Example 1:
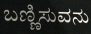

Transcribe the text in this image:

ಬಣ್ಣಿಸುವನು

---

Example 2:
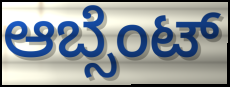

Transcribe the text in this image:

ಆಬ್ಸೆಂಟ್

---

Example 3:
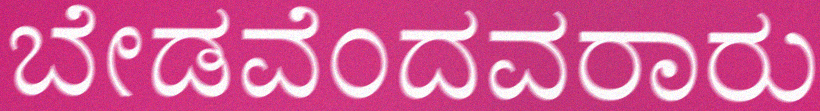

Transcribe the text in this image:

ಬೇಡವೆಂದವರಾರು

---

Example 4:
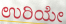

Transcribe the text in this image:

ಉರಿಯೇ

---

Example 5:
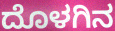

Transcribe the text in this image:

ದೊಳಗಿನ